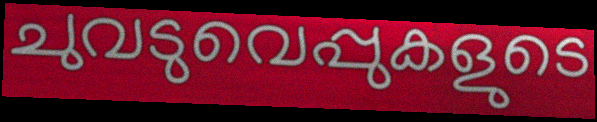
ചുവടുവെപ്പുകളുടെ